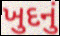
ખુદનું